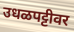
उधळपट्टीवर